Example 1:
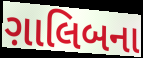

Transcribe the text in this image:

ગ઼ાલિબના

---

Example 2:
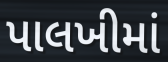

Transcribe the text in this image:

પાલખીમાં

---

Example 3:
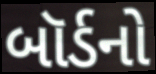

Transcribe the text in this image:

બૉર્ડનો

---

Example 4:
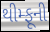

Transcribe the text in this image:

થીમ્ફૂની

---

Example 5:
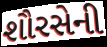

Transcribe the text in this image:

શૌરસેની